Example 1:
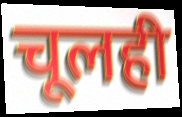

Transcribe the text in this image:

चूलही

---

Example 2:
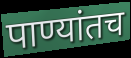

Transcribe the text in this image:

पाण्यांतच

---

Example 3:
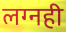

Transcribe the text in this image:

लग्नही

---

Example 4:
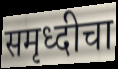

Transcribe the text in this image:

समृध्दीचा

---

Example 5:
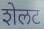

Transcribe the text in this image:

शेलट